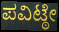
ಪವಿಟ್ಠೇ